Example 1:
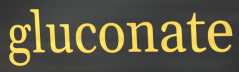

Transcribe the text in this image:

gluconate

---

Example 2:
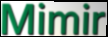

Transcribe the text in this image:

Mimir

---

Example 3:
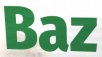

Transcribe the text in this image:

Baz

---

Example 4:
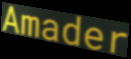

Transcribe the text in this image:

Amader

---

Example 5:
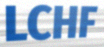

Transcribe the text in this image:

LCHF